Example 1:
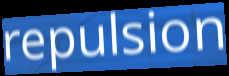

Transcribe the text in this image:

repulsion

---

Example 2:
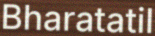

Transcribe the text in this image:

Bharatatil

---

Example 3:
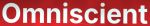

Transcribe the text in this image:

Omniscient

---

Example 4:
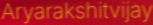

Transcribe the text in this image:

Aryarakshitvijay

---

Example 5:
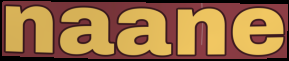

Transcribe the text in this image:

naane